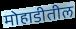
मोहाडीतील